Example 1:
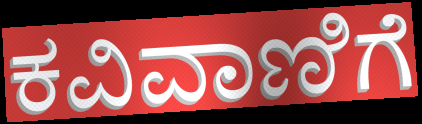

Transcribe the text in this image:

ಕವಿವಾಣಿಗೆ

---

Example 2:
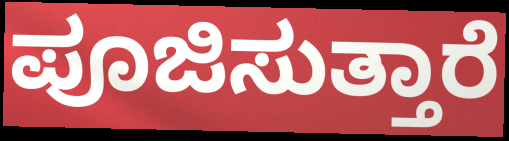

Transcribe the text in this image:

ಪೂಜಿಸುತ್ತಾರೆ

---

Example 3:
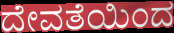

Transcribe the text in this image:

ದೇವತೆಯಿಂದ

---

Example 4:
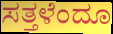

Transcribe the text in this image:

ಸತ್ತಳೆಂದೂ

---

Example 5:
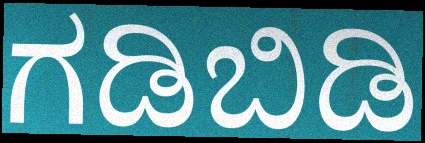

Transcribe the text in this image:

ಗಡಿಬಿಡಿ